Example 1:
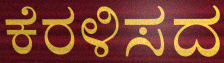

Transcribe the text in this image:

ಕೆರಳಿಸದ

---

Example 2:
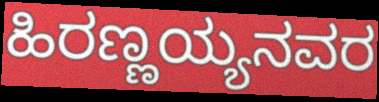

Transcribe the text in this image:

ಹಿರಣ್ಣಯ್ಯನವರ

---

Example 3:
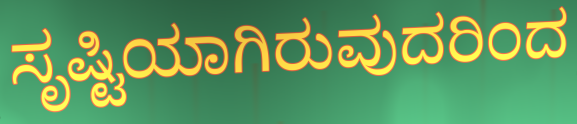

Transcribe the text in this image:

ಸೃಷ್ಟಿಯಾಗಿರುವುದರಿಂದ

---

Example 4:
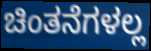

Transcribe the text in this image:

ಚಿಂತನೆಗಳಲ್ಲ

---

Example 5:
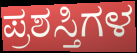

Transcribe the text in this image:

ಪ್ರಶಸ್ತಿಗಳ